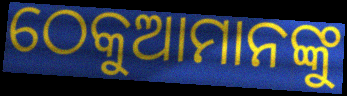
ଠେକୁଆମାନଙ୍କୁ